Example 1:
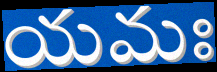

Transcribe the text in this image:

యమః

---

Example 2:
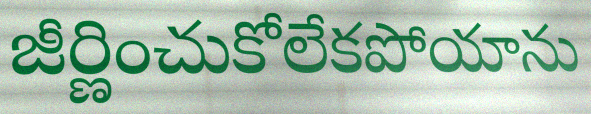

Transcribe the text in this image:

జీర్ణించుకోలేకపోయాను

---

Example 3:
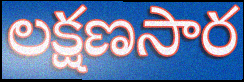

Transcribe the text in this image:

లక్షణసార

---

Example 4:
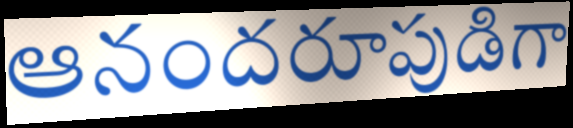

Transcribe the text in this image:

ఆనందరూపుడిగా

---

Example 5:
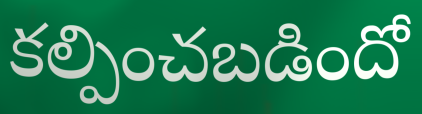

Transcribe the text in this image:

కల్పించబడిందో